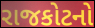
રાજકોટનો